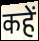
कहें